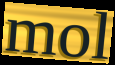
mol